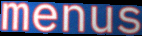
menus